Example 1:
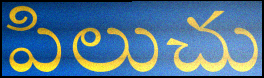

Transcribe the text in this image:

పిలుచు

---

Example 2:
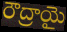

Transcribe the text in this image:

రౌద్రాయై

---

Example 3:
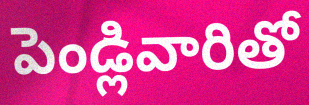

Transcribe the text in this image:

పెండ్లివారితో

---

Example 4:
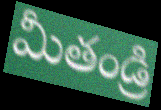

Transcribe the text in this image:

మీతండ్రి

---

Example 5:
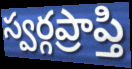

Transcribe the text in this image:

స్వర్గప్రాప్తి